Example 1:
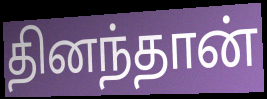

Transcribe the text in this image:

தினந்தான்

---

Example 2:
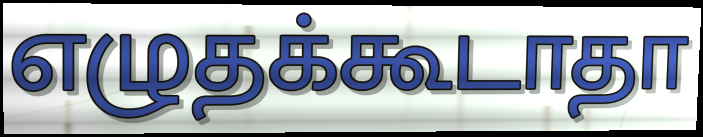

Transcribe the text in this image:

எழுதக்கூடாதா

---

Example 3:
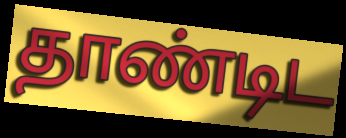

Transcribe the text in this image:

தாண்டிட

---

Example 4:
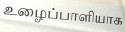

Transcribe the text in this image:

உழைப்பாளியாக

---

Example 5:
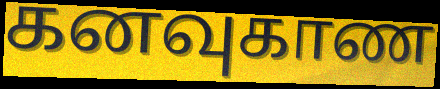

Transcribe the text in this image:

கனவுகாண